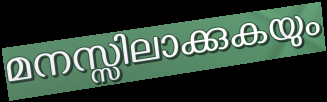
മനസ്സിലാക്കുകയും